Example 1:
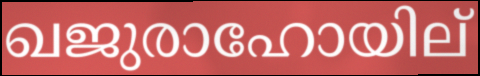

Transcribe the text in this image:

ഖജുരാഹോയില്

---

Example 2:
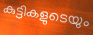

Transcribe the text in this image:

കുട്ടികളുടെയും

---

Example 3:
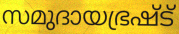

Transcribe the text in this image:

സമുദായഭ്രഷ്ട്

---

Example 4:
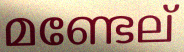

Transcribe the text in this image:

മണ്ടേല്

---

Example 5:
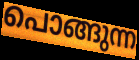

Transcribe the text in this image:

പൊങ്ങുന്ന